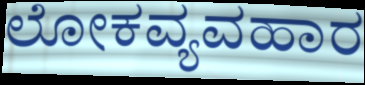
ಲೋಕವ್ಯವಹಾರ